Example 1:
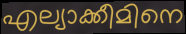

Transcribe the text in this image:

എല്യാക്കീമിനെ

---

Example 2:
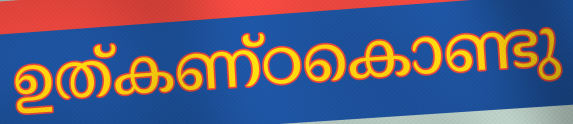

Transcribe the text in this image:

ഉത്കണ്ഠകൊണ്ടു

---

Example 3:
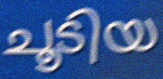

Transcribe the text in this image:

ചൂടിയ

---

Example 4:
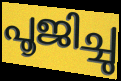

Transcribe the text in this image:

പൂജിച്ചു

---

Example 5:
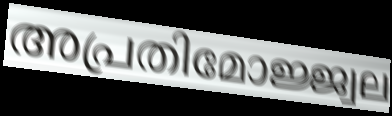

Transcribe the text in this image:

അപ്രതിമോജ്ജ്വല